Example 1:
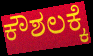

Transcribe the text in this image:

ಕೌಶಲಕ್ಕೆ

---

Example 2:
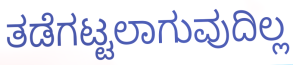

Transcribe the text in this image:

ತಡೆಗಟ್ಟಲಾಗುವುದಿಲ್ಲ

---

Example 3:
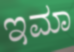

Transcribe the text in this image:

ಇಮಾ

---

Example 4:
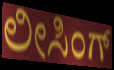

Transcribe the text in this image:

ಲೀಸಿಂಗ್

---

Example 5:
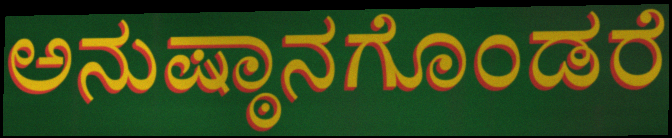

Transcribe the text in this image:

ಅನುಷ್ಠಾನಗೊಂಡರೆ